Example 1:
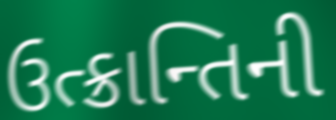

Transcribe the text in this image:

ઉત્ક્રાન્તિની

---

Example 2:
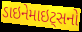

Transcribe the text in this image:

ડાઇનેમાઇટ્સનો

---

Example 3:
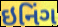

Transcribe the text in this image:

ઇનિંગ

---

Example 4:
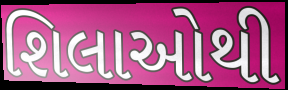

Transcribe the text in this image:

શિલાઓથી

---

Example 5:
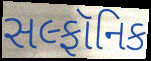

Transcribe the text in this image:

સલ્ફૉનિક